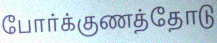
போர்க்குணத்தோடு